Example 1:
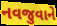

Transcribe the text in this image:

નવજુવાને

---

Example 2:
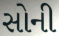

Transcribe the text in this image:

સોની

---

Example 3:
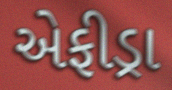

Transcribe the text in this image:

એફીડ્રા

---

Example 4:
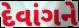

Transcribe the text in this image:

દેવાંગને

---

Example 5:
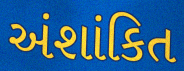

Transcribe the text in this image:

અંશાંકિત